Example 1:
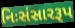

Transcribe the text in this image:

નિઃસંસારરૂપ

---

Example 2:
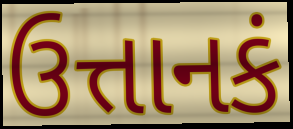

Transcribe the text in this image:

ઉત્તાનકં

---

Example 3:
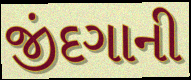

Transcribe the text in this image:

જીંદગાની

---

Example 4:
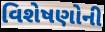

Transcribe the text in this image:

વિશેષણોની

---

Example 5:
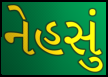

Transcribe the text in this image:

નેહસું